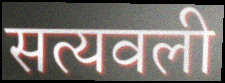
सत्यवली